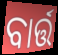
ବାର୍ତ୍ତ